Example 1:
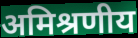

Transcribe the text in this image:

अमिश्रणीय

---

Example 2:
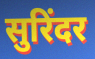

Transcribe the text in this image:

सुरिंदर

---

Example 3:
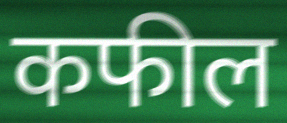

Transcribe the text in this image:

कफील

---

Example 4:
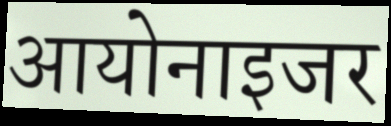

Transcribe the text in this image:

आयोनाइजर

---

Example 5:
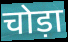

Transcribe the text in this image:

चोड़ा